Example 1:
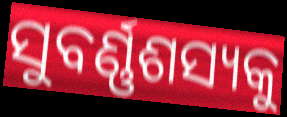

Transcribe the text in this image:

ସୁବର୍ଣ୍ଣଶସ୍ୟକୁ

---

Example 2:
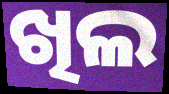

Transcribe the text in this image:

ଖିଲ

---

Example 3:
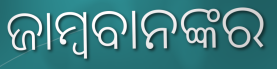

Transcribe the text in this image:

ଜାମ୍ବବାନଙ୍କର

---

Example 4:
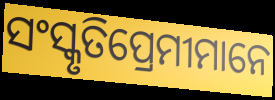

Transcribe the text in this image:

ସଂସ୍କୃତିପ୍ରେମୀମାନେ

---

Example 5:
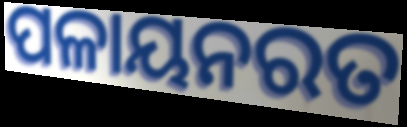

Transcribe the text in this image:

ପଳାୟନରତ